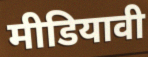
मीडियावी